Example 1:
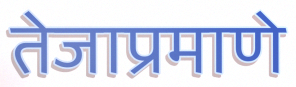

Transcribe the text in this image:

तेजाप्रमाणे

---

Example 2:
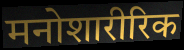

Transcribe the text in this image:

मनोशारीरिक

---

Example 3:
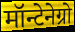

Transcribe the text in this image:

मॉन्टेनेग्रो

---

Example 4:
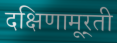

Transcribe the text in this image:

दक्षिणामूर्ती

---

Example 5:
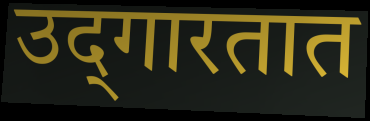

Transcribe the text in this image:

उद्‌गारतात